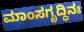
ಮಾಂಸಗೃದ್ಧಿನಃ